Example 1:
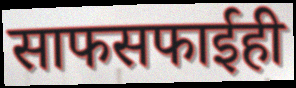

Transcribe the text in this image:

साफसफाईही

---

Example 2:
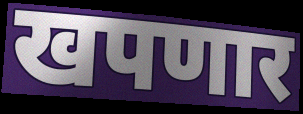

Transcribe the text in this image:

खपणार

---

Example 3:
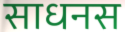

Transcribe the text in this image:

साधनस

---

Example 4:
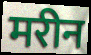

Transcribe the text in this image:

मरीन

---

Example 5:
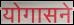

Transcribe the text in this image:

योगासने